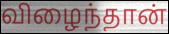
விழைந்தான்